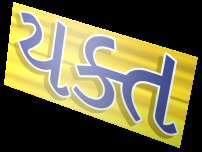
યક્ત